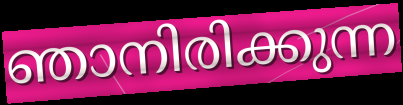
ഞാനിരിക്കുന്ന